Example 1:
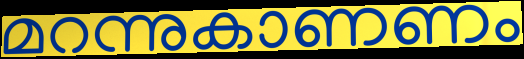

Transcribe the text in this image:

മറന്നുകാണണം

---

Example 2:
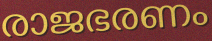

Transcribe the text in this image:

രാജഭരണം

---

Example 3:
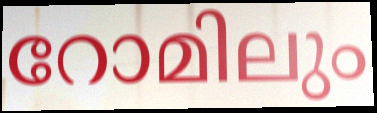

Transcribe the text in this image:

റോമിലും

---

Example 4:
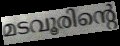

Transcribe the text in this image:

മടവൂരിന്റെ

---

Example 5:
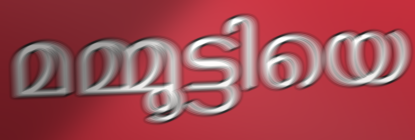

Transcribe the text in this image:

മമ്മൂട്ടിയെ